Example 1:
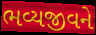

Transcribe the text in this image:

ભવ્યજીવને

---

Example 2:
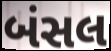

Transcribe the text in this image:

બંસલ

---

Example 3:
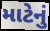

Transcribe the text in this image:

માટેનું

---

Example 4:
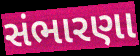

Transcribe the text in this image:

સંભારણા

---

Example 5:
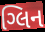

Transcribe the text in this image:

ગ્લિન